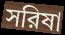
সরিষা